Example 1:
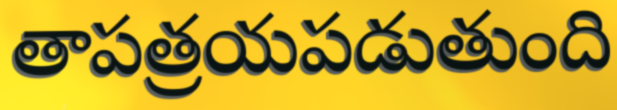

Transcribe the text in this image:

తాపత్రయపడుతుంది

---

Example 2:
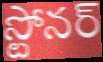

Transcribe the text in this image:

స్టోనర్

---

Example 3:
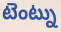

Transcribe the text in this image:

టెంట్ను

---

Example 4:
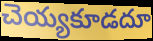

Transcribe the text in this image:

చెయ్యకూడదూ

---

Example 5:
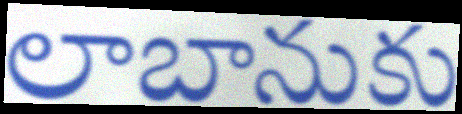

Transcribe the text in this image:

లాబానుకు